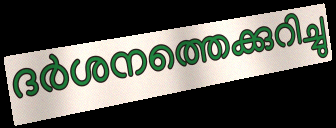
ദർശനത്തെക്കുറിച്ചു